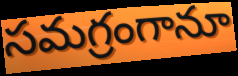
సమగ్రంగానూ